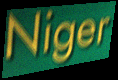
Niger